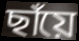
ছাঁয়ে